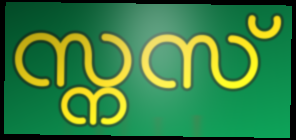
സ്നസ്